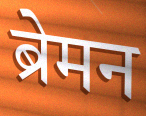
ब्रेमन